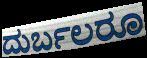
ದುರ್ಬಲರೂ